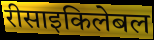
रीसाइकिलेबल